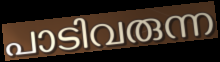
പാടിവരുന്ന